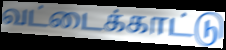
வட்டைக்காட்டு